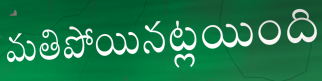
మతిపోయినట్లయింది